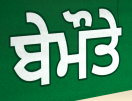
ਬੇਮੌਤੇ